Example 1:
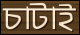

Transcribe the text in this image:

চাটাই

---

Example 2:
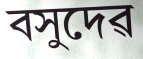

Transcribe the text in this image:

বসুদেৱ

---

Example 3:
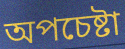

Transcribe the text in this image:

অপচেষ্টা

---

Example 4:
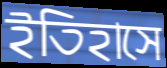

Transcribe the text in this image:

ইতিহাসে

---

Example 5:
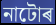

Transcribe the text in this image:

নাটোৰ